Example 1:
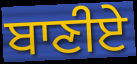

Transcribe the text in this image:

ਬਾਣੀਏ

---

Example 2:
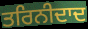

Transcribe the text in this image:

ਤਰਿਨੀਦਾਦ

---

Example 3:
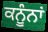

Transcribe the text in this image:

ਕਨੂੰਨਾਂ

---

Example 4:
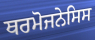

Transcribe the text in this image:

ਥਰਮੋਜਨੇਸਿਸ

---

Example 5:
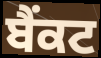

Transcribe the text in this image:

ਬੈਂਕਟ